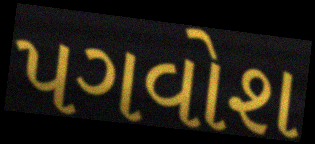
પગવોશ